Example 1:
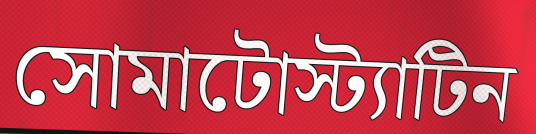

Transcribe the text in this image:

সোমাটোস্ট্যাটিন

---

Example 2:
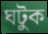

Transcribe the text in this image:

ঘটুক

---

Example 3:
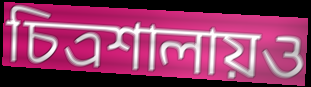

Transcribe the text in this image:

চিত্রশালায়ও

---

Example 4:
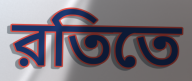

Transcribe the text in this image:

রতিতে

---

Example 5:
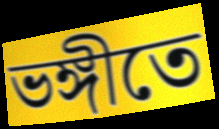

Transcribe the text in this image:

ভঙ্গীতে